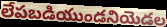
లేపబడియుండనియెడల